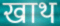
खाथ